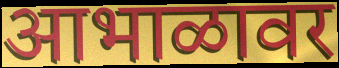
आभाळावर